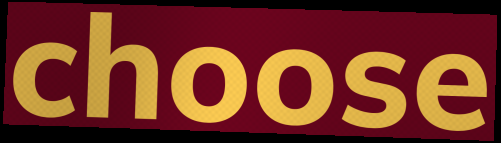
choose